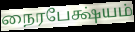
நைரபேக்ஷ்யம்